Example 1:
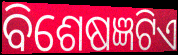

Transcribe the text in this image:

ବିଶେଷଜ୍ଞଟିଏ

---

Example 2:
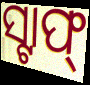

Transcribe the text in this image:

ସ୍ଟାଫ୍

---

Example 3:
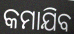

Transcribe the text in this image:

କମାଯିବ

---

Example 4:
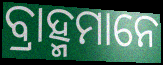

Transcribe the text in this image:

ବ୍ରାହ୍ମମାନେ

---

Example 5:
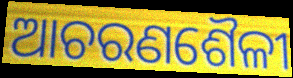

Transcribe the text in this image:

ଆଚରଣଶୈଳୀ